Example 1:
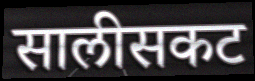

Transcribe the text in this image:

सालीसकट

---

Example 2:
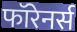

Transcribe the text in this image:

फॉरेनर्स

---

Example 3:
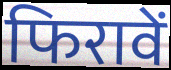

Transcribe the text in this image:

फिरावें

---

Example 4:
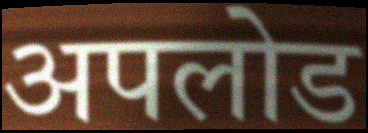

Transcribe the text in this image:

अपलोड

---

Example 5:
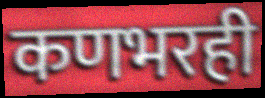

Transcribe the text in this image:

कणभरही